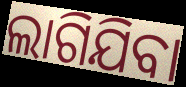
ଲାଗିଯିବା